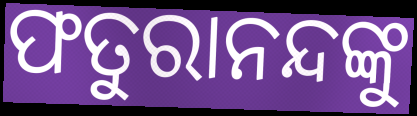
ଫତୁରାନନ୍ଦଙ୍କୁ